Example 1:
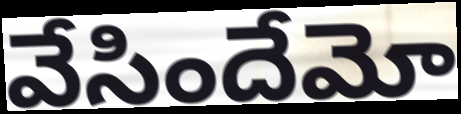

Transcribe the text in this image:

వేసిందేమో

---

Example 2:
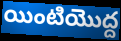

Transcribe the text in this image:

యింటియొద్ద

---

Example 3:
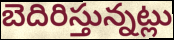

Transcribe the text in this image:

బెదిరిస్తున్నట్లు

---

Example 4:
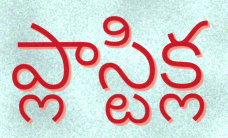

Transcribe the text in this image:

ప్లాస్టిక్ల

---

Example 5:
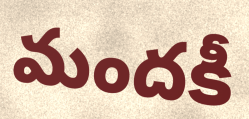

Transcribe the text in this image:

మందకీ